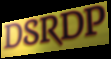
DSRDP